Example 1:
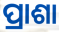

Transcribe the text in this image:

ପ୍ରାଶା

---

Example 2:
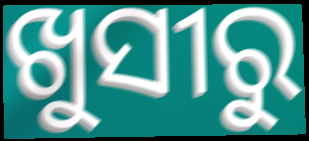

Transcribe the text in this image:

ଖୁସୀରୁ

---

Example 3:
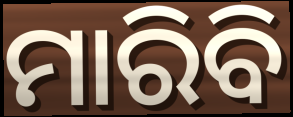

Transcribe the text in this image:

ମାରିବି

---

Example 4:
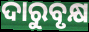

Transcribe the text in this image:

ଦାରୁବୃକ୍ଷ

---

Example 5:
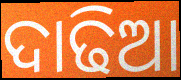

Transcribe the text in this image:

ଦାଢିଆ